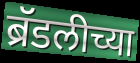
ब्रॅडलीच्या